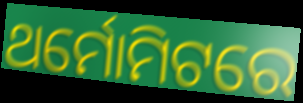
ଥର୍ମୋମିଟରେ